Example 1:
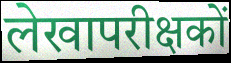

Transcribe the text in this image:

लेखापरीक्षकों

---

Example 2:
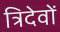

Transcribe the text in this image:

त्रिदेवों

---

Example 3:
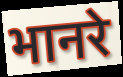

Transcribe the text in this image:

भानरे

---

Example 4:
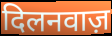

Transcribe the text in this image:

दिलनवाज़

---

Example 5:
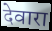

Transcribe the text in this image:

देवारा